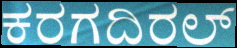
ಕರಗದಿರಲ್